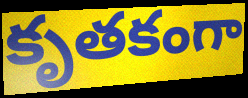
కృతకంగా